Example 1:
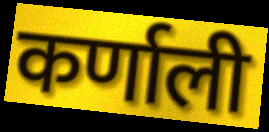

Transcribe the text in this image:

कर्णाली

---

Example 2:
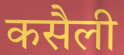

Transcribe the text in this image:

कसैली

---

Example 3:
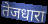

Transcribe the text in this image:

तेजधारा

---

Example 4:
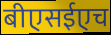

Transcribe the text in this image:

बीएसईएच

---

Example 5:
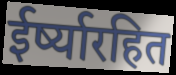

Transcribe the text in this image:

ईर्ष्यारहित